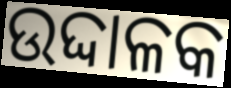
ଉଦ୍ଦାଳକ